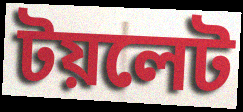
টয়লেট